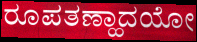
ರೂಪತಣ್ಹಾದಯೋ